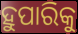
ହୁପାରିକୁ